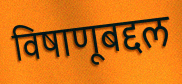
विषाणूबद्दल